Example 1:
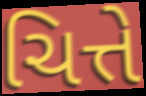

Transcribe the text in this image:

ચિત્તે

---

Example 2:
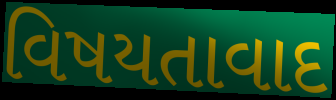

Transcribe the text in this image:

વિષયતાવાદ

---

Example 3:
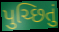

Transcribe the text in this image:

પુચ્છિતું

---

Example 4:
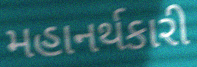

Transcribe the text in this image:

મહાનર્થકારી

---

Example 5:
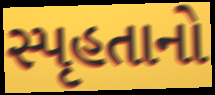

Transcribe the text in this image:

સ્પૃહતાનો